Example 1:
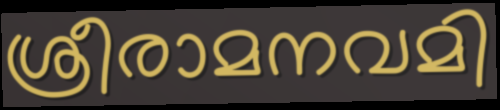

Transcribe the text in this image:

ശ്രീരാമനവമി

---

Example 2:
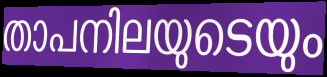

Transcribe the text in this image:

താപനിലയുടെയും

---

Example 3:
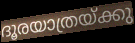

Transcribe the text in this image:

ദൂരയാത്രയ്ക്കു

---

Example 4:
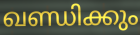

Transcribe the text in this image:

ഖണ്ഡിക്കും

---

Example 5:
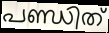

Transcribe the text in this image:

പണ്ഡിത്